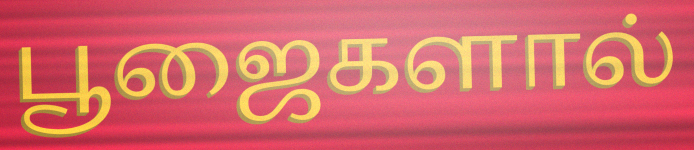
பூஜைகளால்